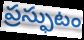
ప్రస్ఫుటం